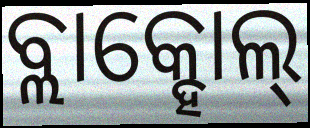
ବ୍ଲାକ୍ହୋଲ୍